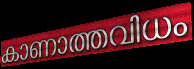
കാണാത്തവിധം